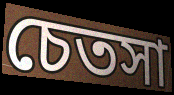
চেতসা